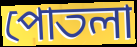
পোতলা